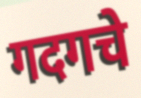
गदगचे